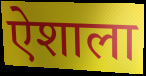
ऐशाला